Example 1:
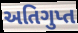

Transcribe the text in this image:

અતિગુપ્ત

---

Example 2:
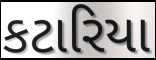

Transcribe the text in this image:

કટારિયા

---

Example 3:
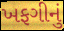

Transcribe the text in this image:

ખફગીનું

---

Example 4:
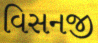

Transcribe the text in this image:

વિસનજી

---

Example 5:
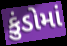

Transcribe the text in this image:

કુંડોમાં